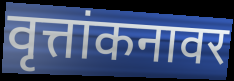
वृत्तांकनावर